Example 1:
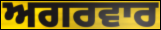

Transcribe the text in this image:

ਅਗਰਵਾਰ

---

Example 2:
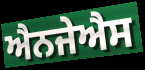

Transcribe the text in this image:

ਐਨਜੇਐਸ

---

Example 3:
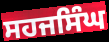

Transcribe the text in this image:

ਸਹਜਸਿੰਘ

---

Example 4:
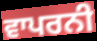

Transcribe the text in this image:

ਵਾਪਰਨੀ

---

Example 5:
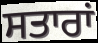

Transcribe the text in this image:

ਸਤਾਰਾਂ